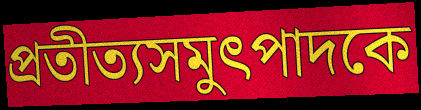
প্রতীত্যসমুৎপাদকে